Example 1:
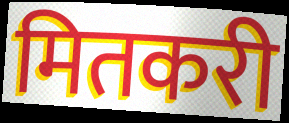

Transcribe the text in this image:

मितकरी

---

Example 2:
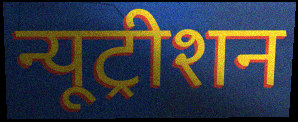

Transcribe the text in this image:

न्यूट्रीशन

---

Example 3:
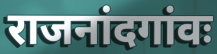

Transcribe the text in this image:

राजनांदगांवः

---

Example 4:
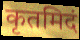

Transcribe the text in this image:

कृतमिदं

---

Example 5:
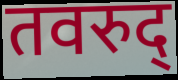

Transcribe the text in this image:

तवरुद्